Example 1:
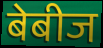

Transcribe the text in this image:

बेबीज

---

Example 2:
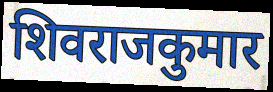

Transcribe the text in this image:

शिवराजकुमार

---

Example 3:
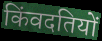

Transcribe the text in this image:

किंवदतियों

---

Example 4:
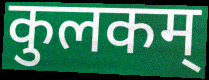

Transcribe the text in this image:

कुलकम्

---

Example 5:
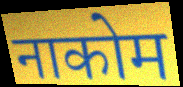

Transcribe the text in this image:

नाकोम